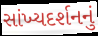
સાંખ્યદર્શનનું